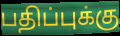
பதிப்புக்கு